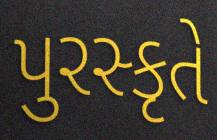
પુરસ્કૃતે